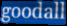
goodall